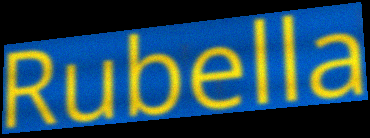
Rubella